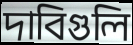
দাবিগুলি